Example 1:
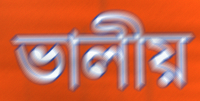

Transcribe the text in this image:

ভালীয়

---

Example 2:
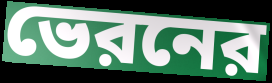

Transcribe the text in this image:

ভেরনের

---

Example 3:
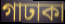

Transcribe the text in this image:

গাঢাকা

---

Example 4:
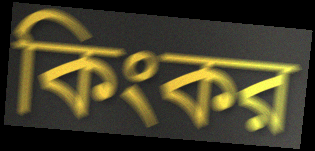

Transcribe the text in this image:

কিংকর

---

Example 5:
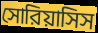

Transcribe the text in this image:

সোরিয়াসিস